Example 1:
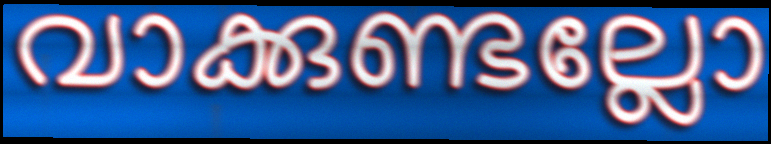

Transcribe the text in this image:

വാക്കുണ്ടല്ലോ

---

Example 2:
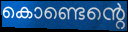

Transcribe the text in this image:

കൊണ്ടെന്റെ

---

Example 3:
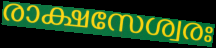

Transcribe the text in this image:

രാക്ഷസേശ്വരഃ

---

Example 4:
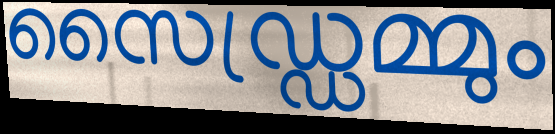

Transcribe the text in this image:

സൈഡ്ഡ്രമ്മും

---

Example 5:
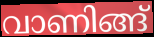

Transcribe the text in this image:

വാണിങ്ങ്